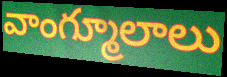
వాంగ్మూలాలు